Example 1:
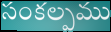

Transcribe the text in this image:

సంకల్పము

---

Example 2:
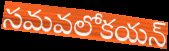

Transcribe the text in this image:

సమవలోకయన్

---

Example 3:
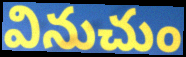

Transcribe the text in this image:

వినుచుం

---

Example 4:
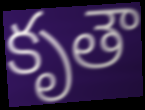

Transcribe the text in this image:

కృతౌ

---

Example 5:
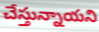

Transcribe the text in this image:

చేస్తున్నాయని